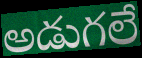
అడుగలే